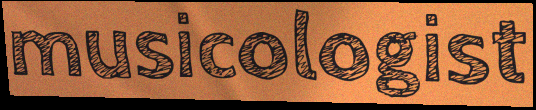
musicologist